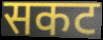
सकट